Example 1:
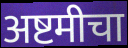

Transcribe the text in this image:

अष्टमीचा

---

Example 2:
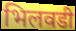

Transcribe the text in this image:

भिलवडी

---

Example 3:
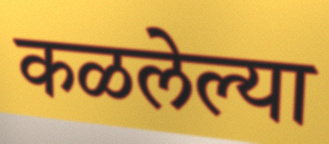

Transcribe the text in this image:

कळलेल्या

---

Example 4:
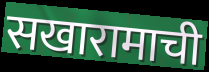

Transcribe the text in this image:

सखारामाची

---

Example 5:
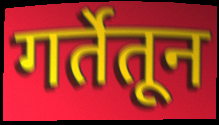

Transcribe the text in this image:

गर्तेतून